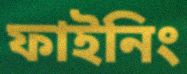
ফাইনিং